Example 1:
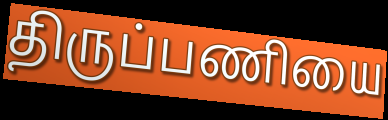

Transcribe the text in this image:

திருப்பணியை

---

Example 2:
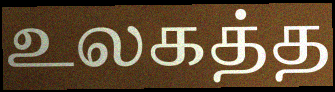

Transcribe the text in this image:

உலகத்த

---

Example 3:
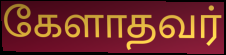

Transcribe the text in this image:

கேளாதவர்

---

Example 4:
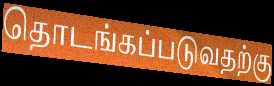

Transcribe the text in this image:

தொடங்கப்படுவதற்கு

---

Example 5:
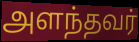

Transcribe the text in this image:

அளந்தவர்